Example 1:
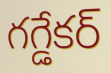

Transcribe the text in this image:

గగ్డేకర్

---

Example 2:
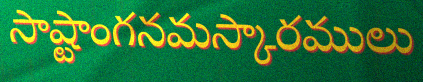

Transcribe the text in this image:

సాష్టాంగనమస్కారములు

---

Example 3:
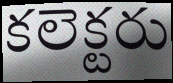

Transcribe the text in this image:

కలెక్టరు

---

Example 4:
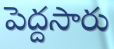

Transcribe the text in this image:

పెద్దసారు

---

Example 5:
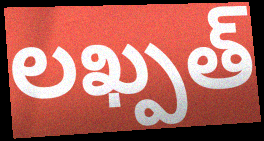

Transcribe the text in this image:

లఖ్పత్